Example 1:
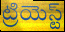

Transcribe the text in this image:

ట్రియెస్ట్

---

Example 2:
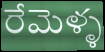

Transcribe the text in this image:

రేమెళ్ళ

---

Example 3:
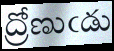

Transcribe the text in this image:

ద్రోణుఁడు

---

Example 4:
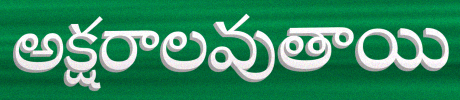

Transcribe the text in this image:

అక్షరాలవుతాయి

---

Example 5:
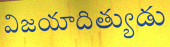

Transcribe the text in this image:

విజయాదిత్యుడు